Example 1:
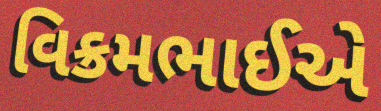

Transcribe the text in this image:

વિક્રમભાઈએ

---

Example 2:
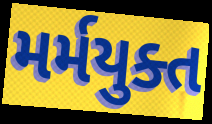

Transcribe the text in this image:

મર્મયુક્ત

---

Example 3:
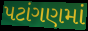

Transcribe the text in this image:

પટાંગણમાં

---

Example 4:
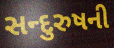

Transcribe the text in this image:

સન્દુરુષની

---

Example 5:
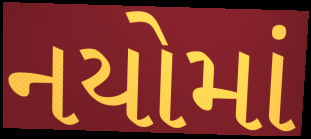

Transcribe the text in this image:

નયોમાં